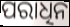
ପରାଧିନ